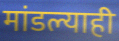
मांडल्याही